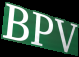
BPV